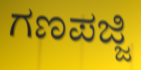
ಗಣಪಜ್ಜಿ